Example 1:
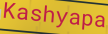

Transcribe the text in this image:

Kashyapa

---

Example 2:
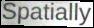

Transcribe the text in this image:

Spatially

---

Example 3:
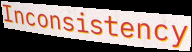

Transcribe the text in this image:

Inconsistency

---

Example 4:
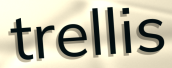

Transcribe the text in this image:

trellis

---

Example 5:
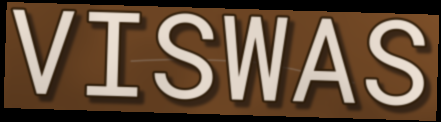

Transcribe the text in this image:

VISWAS